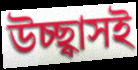
উচ্ছ্বাসই